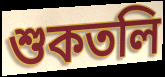
শুকতলি